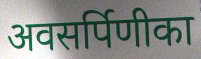
अवसर्पिणीका